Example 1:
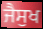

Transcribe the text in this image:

ਜੈਸੁਖ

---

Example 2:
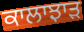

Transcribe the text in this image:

ਕਾਲਾਝਾਡ਼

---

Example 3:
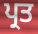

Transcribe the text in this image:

ਪ੍ਰਤ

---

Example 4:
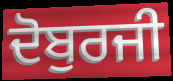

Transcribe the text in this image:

ਦੋਬੁਰਜੀ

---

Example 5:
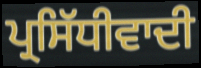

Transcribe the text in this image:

ਪ੍ਰਸਿੱਧੀਵਾਦੀ